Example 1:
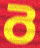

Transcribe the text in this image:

రె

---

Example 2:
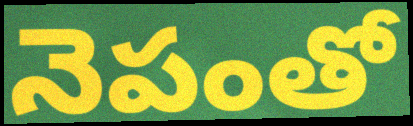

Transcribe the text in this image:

నెపంతో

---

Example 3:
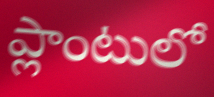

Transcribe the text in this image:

ప్లాంటులో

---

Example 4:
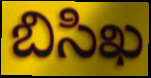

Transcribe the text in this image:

బిసిఖ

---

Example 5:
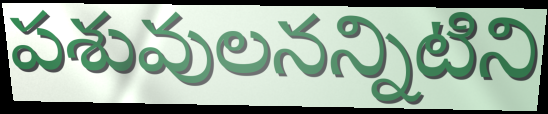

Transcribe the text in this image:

పశువులనన్నిటిని